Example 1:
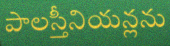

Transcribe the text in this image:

పాలస్తీనియన్లను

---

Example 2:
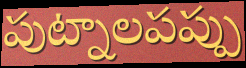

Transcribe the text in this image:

పుట్నాలపప్పు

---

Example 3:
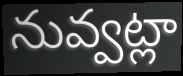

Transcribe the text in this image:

నువ్వట్లా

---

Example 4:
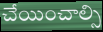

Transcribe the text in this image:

చేయించాల్సి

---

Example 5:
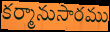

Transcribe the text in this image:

కర్మానుసారము